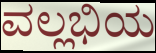
ವಲ್ಲಭಿಯ